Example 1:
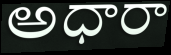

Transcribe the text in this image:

అధారా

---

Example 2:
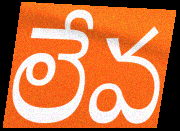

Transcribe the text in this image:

లేవ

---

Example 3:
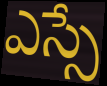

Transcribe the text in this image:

ఎస్సే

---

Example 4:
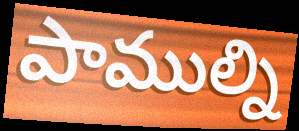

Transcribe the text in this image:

పాముల్ని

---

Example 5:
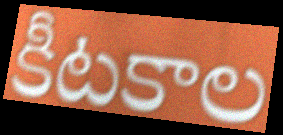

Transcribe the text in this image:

కీటకాల